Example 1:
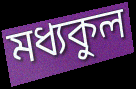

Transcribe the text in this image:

মধ্যকুল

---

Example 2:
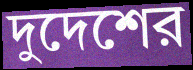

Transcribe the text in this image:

দুদেশের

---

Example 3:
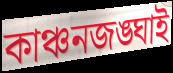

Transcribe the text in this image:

কাঞ্চনজঙ্ঘাই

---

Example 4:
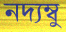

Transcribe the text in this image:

নদ্যম্বু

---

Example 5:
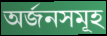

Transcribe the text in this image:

অর্জনসমূহ